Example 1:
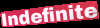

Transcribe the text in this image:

Indefinite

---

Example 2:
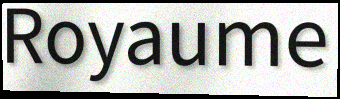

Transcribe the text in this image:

Royaume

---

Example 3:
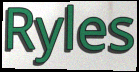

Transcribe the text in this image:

Ryles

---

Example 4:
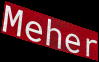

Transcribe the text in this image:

Meher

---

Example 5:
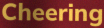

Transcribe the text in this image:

Cheering